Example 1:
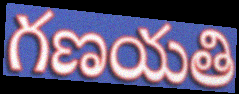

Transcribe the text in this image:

గణయతి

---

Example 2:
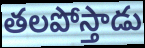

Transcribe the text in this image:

తలపోస్తాడు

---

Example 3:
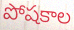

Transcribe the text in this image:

పోషకాల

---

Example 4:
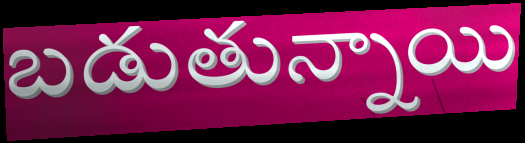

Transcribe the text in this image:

బడుతున్నాయి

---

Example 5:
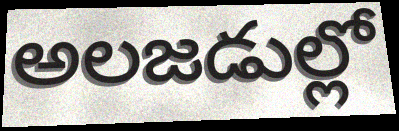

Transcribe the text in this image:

అలజడుల్లో